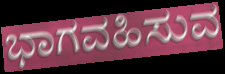
ಭಾಗವಹಿಸುವ